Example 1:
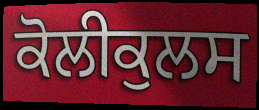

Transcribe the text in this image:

ਕੋਲੀਕੁਲਸ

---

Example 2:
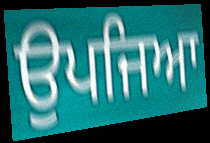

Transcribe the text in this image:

ਉਪਜਿਆ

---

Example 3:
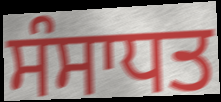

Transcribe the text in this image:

ਸੰਸਾਧਤ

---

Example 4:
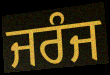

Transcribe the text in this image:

ਜਰੰਜ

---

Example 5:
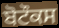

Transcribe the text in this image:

ਬੋਟੌਕਸ